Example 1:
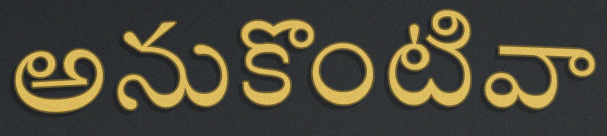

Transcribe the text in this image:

అనుకొంటివా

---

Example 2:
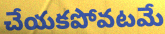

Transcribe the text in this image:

చేయకపోవటమే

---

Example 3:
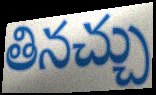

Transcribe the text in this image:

తినచ్చు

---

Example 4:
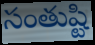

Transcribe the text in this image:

సంతుష్టి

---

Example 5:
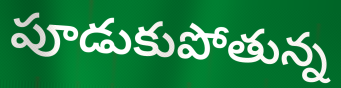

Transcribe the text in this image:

పూడుకుపోతున్న